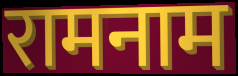
रामनाम